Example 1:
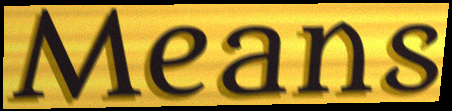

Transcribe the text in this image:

Means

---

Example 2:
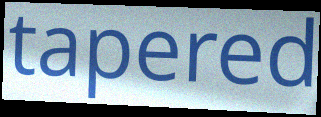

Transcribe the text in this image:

tapered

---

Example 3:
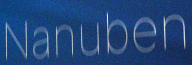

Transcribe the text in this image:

Nanuben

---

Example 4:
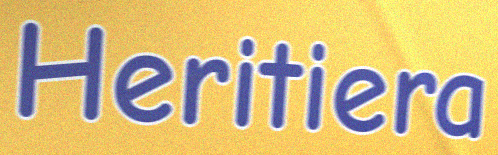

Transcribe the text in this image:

Heritiera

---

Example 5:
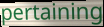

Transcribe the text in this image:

pertaining